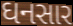
ઘનસાર